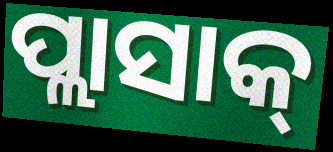
ପ୍ଲାସାକ୍